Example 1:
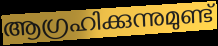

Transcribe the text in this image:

ആഗ്രഹിക്കുന്നുമുണ്ട്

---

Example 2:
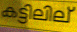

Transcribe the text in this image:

കട്ടിലില്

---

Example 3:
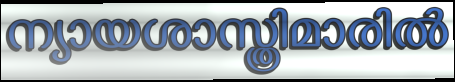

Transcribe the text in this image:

ന്യായശാസ്ത്രിമാരിൽ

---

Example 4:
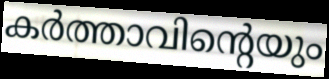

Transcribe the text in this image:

കർത്താവിന്റെയും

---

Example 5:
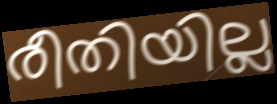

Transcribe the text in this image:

രീതിയില്ല